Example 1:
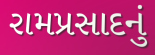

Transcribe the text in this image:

રામપ્રસાદનું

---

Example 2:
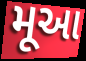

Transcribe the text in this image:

મૂઆ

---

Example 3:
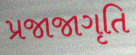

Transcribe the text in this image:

પ્રજાજાગૃતિ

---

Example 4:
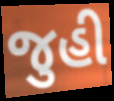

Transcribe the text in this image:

જુહી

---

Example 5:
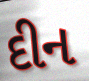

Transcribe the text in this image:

દીન